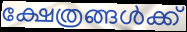
ക്ഷേത്രങ്ങൾക്ക്